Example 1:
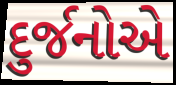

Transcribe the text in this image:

દુર્જનોએ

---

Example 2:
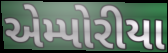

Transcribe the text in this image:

એમ્પોરીયા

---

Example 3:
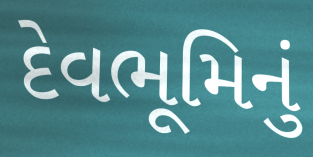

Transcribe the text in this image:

દેવભૂમિનું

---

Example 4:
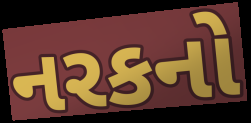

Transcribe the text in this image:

નરકનો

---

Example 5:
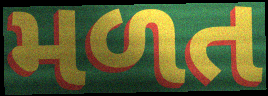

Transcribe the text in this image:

મળત